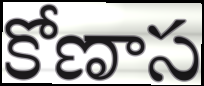
కోణాస